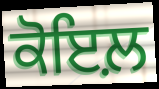
ਕੋਇਲ਼